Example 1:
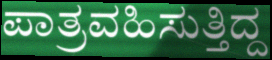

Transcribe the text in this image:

ಪಾತ್ರವಹಿಸುತ್ತಿದ್ದ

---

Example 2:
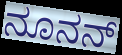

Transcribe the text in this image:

ನೂನನ್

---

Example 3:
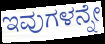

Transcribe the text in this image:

ಇವುಗಳನ್ನೇ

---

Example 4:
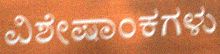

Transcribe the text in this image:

ವಿಶೇಷಾಂಕಗಳು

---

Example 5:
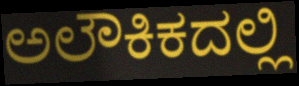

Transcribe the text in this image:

ಅಲೌಕಿಕದಲ್ಲಿ